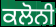
ਕਲੋਨੀ